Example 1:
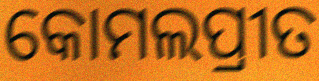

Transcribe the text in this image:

କୋମଲପ୍ରୀତ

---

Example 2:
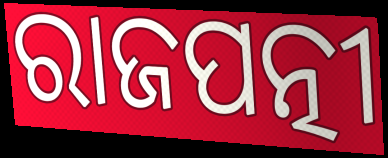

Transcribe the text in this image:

ରାଜପତ୍ନୀ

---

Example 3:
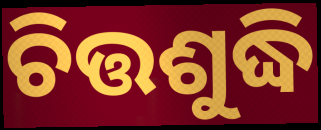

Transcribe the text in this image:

ଚିତ୍ତଶୁଦ୍ଧି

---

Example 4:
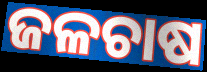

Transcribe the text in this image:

ଜଳଚାଷ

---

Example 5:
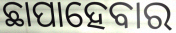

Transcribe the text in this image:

ଛାପାହେବାର